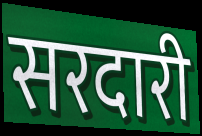
सरदारी